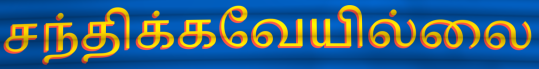
சந்திக்கவேயில்லை